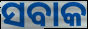
ସବାକ